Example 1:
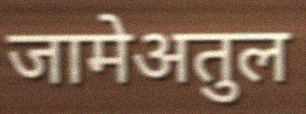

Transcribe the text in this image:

जामेअतुल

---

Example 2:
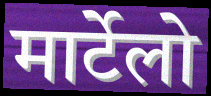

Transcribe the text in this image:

मार्टेलो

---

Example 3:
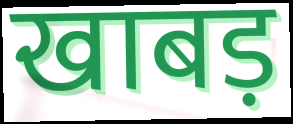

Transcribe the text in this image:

खाबड़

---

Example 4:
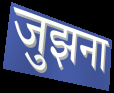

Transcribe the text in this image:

जुझना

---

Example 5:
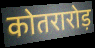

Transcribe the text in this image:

कोतरारोड़